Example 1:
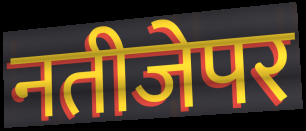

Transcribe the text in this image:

नतीजेपर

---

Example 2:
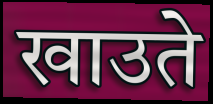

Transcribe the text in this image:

खाउते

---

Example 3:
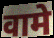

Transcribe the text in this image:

वामे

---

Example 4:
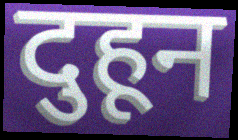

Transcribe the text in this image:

दुहून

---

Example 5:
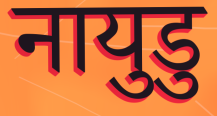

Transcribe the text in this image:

नायुडु